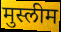
मुस्लीम